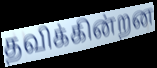
தவிக்கின்றன